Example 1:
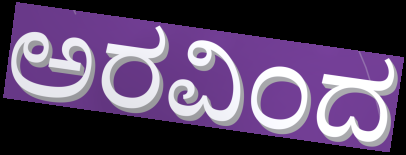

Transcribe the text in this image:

ಅರವಿಂದ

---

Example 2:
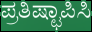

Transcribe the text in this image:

ಪ್ರತಿಷ್ಟಾಪಿಸಿ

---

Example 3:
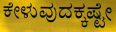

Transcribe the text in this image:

ಕೇಳುವುದಕ್ಕಷ್ಟೇ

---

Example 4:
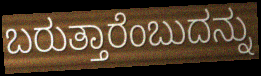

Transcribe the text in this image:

ಬರುತ್ತಾರೆಂಬುದನ್ನು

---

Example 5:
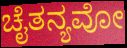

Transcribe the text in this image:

ಚೈತನ್ಯವೋ